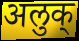
अलुक्